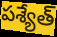
పశ్యేత్